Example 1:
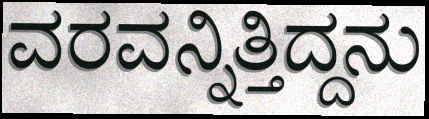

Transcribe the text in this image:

ವರವನ್ನಿತ್ತಿದ್ದನು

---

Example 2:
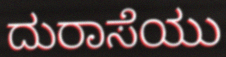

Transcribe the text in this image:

ದುರಾಸೆಯು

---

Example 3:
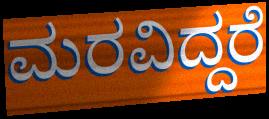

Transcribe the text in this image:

ಮರವಿದ್ದರೆ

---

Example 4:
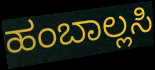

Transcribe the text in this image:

ಹಂಬಾಲ್ಲಸಿ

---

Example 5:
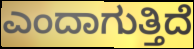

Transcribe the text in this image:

ಎಂದಾಗುತ್ತಿದೆ